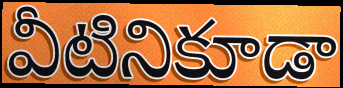
వీటినికూడా